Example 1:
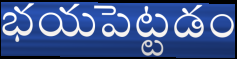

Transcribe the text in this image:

భయపెట్టడం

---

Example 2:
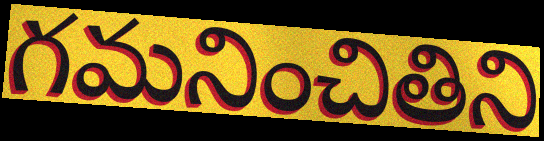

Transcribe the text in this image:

గమనించితిని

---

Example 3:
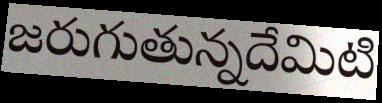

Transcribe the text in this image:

జరుగుతున్నదేమిటి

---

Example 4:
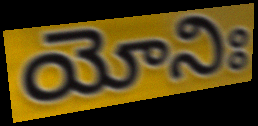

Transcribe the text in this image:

యోనిః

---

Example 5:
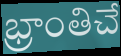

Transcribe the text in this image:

భ్రాంతిచే